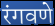
रंगवणे